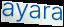
ayara